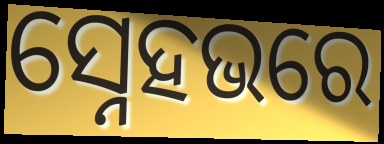
ସ୍ନେହଭରେ